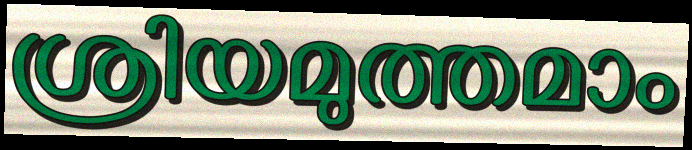
ശ്രിയമുത്തമാം